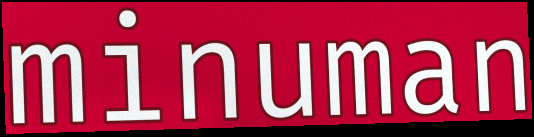
minuman